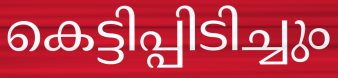
കെട്ടിപ്പിടിച്ചും